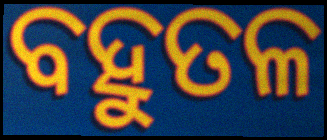
ବହୁତଳ